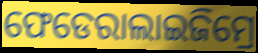
ଫେଡେରାଲାଇଜିମ୍ରେ